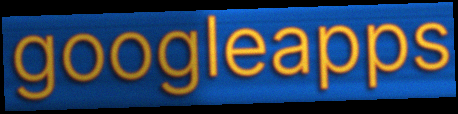
googleapps